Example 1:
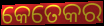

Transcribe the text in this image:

କେତେକର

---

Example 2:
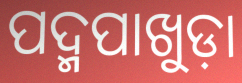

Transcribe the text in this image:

ପଦ୍ମପାଖୁଡ଼ା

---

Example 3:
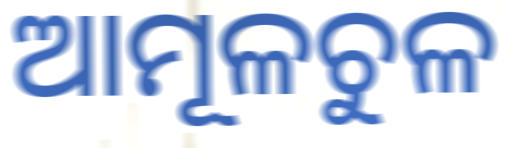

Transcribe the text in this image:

ଆମୂଳଚୁଳ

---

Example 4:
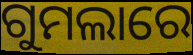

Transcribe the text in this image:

ଗୁମଲାରେ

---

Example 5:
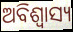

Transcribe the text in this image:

ଅବିଶ୍ଵାସ୍ୟ